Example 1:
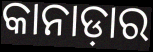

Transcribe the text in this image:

କାନାଡ଼ାର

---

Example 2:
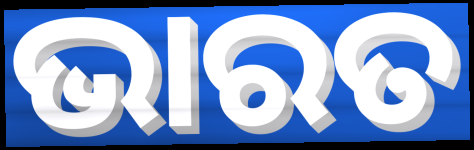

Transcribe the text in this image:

ଭାରତ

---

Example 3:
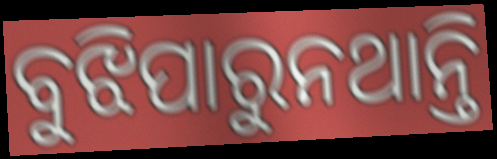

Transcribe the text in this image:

ବୁଝିପାରୁନଥାନ୍ତି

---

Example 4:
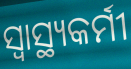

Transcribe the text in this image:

ସ୍ୱାସ୍ଥ୍ୟକର୍ମୀ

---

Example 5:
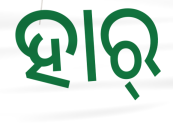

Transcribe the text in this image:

ହାର୍